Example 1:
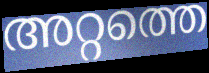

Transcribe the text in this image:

അറ്റത്തെ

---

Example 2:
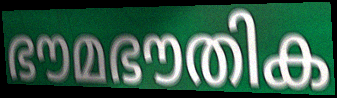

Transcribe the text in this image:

ഭൗമഭൗതിക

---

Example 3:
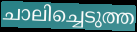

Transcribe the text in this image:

ചാലിച്ചെടുത്ത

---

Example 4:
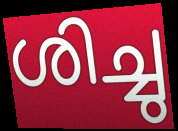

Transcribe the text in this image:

ശിച്ചു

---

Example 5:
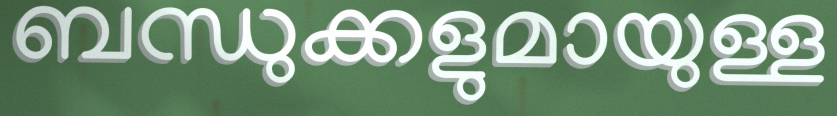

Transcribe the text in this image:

ബന്ധുക്കളുമായുള്ള